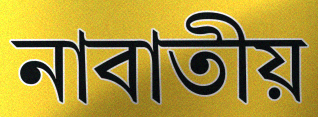
নাবাতীয়